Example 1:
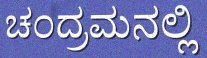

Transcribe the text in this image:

ಚಂದ್ರಮನಲ್ಲಿ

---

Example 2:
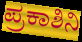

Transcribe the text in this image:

ಪ್ರಕಾಶಿನಿ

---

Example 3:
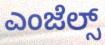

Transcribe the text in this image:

ಎಂಜೆಲ್ಸ್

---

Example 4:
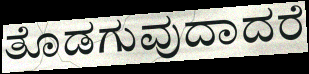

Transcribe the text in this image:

ತೊಡಗುವುದಾದರೆ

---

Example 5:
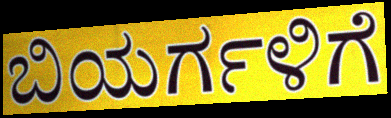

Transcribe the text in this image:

ಬಿಯರ್ಗಳಿಗೆ